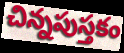
చిన్నపుస్తకం